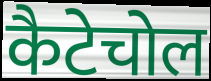
कैटेचोल